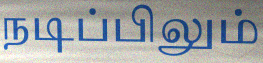
நடிப்பிலும்